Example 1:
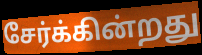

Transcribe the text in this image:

சேர்க்கின்றது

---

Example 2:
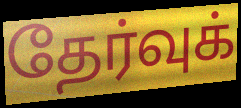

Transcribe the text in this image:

தேர்வுக்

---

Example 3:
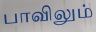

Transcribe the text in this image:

பாவிலும்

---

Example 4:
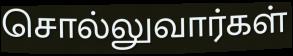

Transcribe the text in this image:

சொல்லுவார்கள்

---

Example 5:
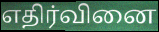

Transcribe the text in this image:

எதிர்வினை